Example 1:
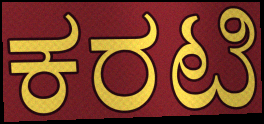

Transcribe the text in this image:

ಕರಟಿ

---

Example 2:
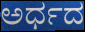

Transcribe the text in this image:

ಅರ್ಧದ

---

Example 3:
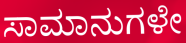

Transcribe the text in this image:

ಸಾಮಾನುಗಳೇ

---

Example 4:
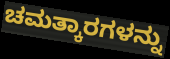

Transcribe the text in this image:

ಚಮತ್ಕಾರಗಳನ್ನು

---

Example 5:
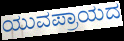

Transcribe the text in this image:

ಯುವಪ್ರಾಯದ